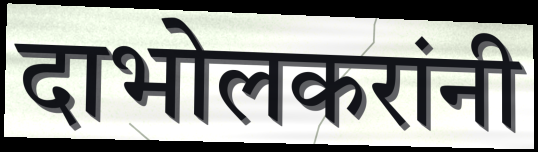
दाभोलकरांनी